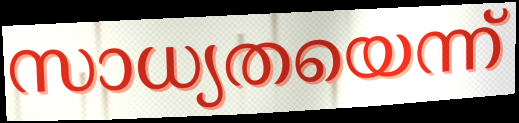
സാധ്യതയെന്ന്